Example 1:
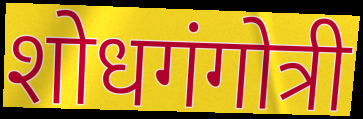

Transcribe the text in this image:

शोधगंगोत्री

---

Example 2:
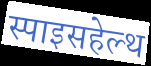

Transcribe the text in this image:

स्पाइसहेल्थ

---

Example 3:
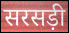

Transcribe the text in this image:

सरसड़ी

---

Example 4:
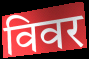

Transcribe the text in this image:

विवर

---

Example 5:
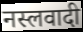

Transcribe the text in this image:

नस्लवादी